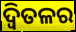
ଦ୍ୱିତଳର